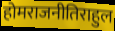
होमराजनीतिराहुल